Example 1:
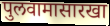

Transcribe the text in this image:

पुलवामासारखा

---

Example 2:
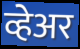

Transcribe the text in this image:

व्हेअर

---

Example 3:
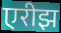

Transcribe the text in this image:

एरीझ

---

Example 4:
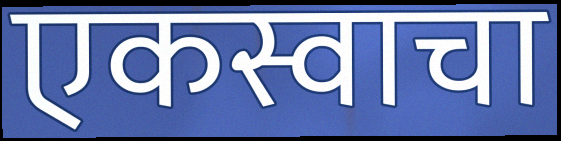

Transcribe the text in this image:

एकस्वाचा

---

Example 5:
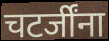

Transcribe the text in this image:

चटर्जींना